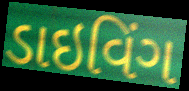
ડાઇવિંગ